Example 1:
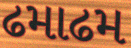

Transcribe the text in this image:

ઢમાઢમ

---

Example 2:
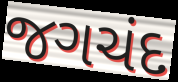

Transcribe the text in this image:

જગચંદ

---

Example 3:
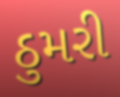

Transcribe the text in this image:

ઠુમરી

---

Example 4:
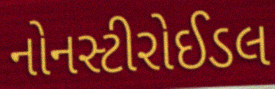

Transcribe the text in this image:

નોનસ્ટીરોઈડલ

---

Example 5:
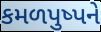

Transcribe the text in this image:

કમળપુષ્પને